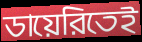
ডায়েরিতেই